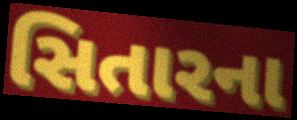
સિતારના